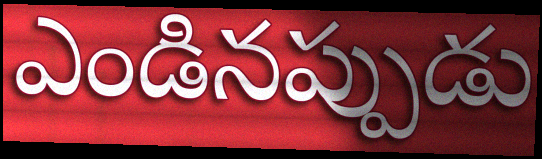
ఎండినప్పుడు